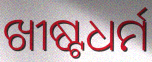
ଖୀଷ୍ଟଧର୍ମ